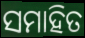
ସମାହିତ